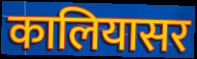
कालियासर